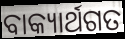
ବାକ୍ୟାର୍ଥଗତ